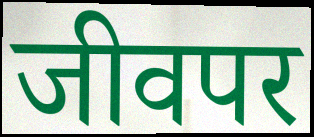
जीवपर